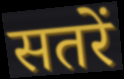
सतरें